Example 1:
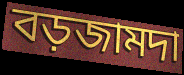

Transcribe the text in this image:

বড়জামদা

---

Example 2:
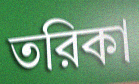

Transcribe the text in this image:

তরিকা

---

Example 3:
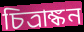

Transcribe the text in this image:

চিত্রাঙ্কন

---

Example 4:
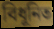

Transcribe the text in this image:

বিধূনিত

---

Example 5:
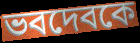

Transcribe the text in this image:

ভবদেবকে